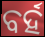
ବର୍ହ